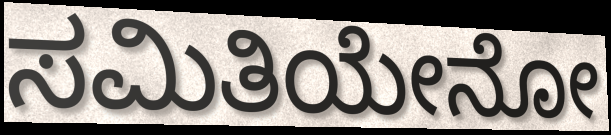
ಸಮಿತಿಯೇನೋ